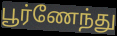
பூர்ணேந்து